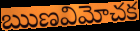
ఋణవిమోచక